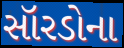
સૉરડોના